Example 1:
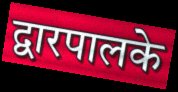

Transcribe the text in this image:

द्वारपालके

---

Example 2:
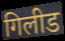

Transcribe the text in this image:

गिलीड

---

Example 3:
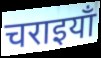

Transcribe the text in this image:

चराइयाँ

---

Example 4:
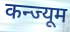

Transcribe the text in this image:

कन्ज्यूम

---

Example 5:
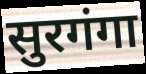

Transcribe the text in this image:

सुरगंगा